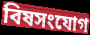
বিষসংযোগ